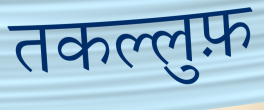
तकल्लुफ़